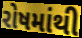
રોષમાંથી